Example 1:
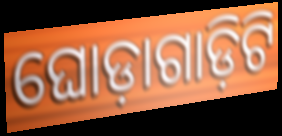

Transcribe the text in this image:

ଘୋଡ଼ାଗାଡ଼ିଟି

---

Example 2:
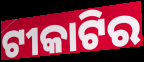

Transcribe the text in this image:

ଟୀକାଟିର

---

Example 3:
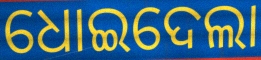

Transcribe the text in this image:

ଧୋଇଦେଲା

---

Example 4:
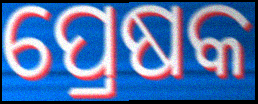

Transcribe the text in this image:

ପ୍ରେଷକ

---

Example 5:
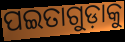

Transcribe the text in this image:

ପଇତାଗୁଡ଼ାକୁ